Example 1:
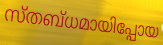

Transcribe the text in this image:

സ്തബ്ധമായിപ്പോയ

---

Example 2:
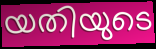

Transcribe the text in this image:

യതിയുടെ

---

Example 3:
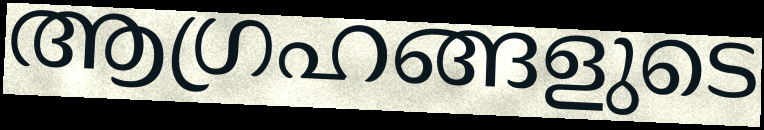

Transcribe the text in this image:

ആഗ്രഹങ്ങളുടെ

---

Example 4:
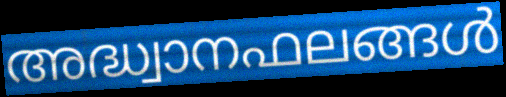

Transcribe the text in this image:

അദ്ധ്വാനഫലങ്ങൾ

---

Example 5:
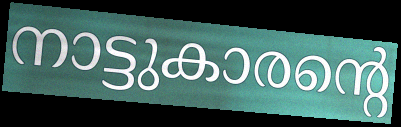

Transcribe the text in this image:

നാട്ടുകാരന്റെ